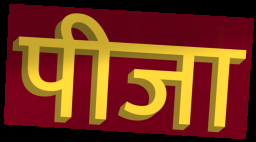
पीजा